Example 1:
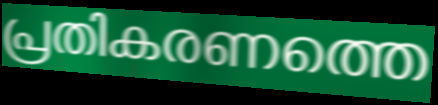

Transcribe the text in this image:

പ്രതികരണത്തെ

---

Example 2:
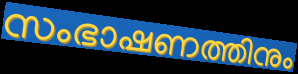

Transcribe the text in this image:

സംഭാഷണത്തിനും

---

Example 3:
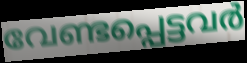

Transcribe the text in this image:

വേണ്ടപ്പെട്ടവർ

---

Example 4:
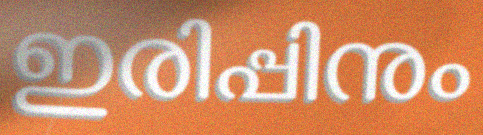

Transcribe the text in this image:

ഇരിപ്പിനും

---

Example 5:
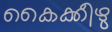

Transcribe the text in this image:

കൈക്കീഴു